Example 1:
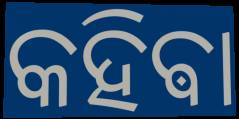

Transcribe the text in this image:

କହିଵା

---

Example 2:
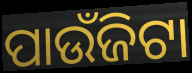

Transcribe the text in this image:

ପାଉଁଜିଟା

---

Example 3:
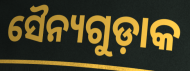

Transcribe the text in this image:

ସୈନ୍ୟଗୁଡ଼ାକ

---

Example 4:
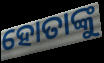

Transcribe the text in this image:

ହୋତାଙ୍କୁ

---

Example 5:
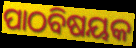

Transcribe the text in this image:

ପାଠବିଷୟକ